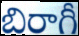
బిరాగీ